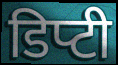
डिप्‍टी